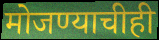
मोजण्याचीही